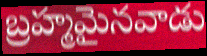
బ్రహ్మమైనవాడు